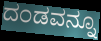
ದಂಡವನ್ನೂ